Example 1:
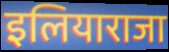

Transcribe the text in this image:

इलियाराजा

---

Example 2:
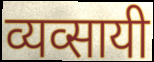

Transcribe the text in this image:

व्यव्सायी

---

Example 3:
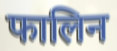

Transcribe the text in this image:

फालिन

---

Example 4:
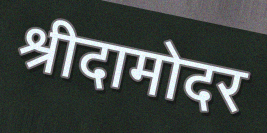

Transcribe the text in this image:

श्रीदामोदर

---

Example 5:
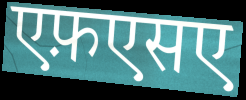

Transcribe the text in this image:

एफ़एसए